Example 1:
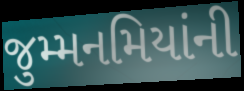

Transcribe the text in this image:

જુમ્મનમિયાંની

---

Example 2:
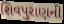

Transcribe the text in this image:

શિવપુરાણની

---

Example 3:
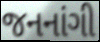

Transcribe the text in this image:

જનનાંગી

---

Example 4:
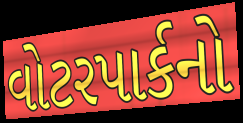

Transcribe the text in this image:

વોટરપાર્કનો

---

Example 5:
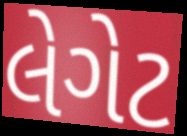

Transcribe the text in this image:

લેગેટ